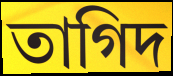
তাগিদ